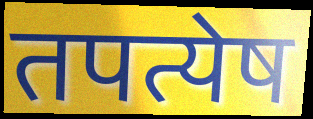
तपत्येष